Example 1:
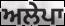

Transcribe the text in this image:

ਅਲੇਪਾ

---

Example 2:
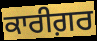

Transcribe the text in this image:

ਕਾਰੀਗ਼ਰ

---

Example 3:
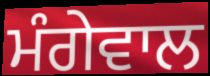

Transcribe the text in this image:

ਮੰਗੇਵਾਲ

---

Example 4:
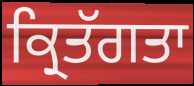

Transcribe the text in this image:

ਕ੍ਰਿਤੱਗਤਾ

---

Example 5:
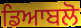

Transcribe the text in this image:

ਡਿਆਬਲੋ